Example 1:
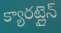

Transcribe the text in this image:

క్యారట్లైన్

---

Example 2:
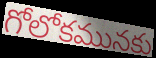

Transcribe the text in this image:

గోలోకమునకు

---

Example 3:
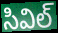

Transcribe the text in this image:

సివిల్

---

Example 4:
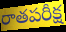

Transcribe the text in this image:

రాతపరీక్ష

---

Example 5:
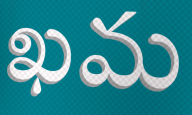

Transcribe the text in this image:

ఖమ